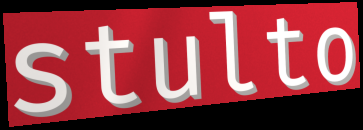
stulto